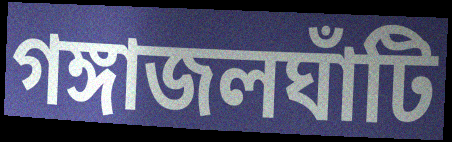
গঙ্গাজলঘাঁটি